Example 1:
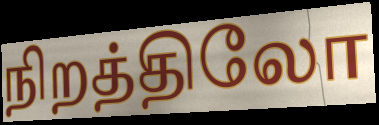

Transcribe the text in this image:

நிறத்திலோ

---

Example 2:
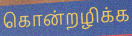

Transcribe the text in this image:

கொன்றழிக்க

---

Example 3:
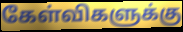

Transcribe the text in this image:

கேள்விகளுக்கு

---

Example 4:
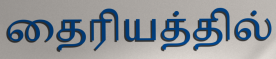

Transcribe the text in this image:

தைரியத்தில்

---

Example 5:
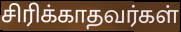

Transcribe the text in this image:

சிரிக்காதவர்கள்